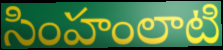
సింహంలాటి